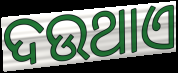
ଦଉଥାଏ